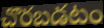
చొరబడటం